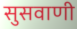
सुसवाणी